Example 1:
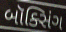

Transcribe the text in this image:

બૉક્સિંગ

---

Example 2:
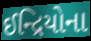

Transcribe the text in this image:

ઈન્દ્રિયોના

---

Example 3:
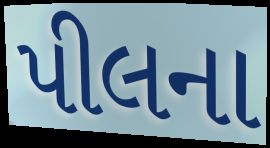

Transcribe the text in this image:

પીલના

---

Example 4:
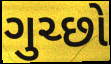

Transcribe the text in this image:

ગુચ્છો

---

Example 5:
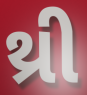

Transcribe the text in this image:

થ્રી